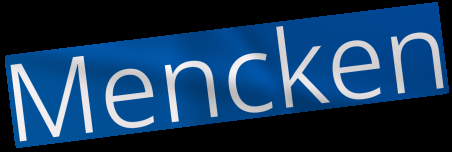
Mencken